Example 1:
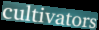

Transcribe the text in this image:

cultivators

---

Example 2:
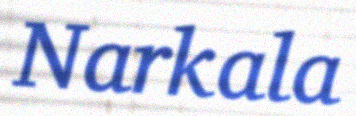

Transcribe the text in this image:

Narkala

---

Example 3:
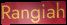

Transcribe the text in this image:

Rangiah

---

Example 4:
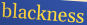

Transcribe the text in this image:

blackness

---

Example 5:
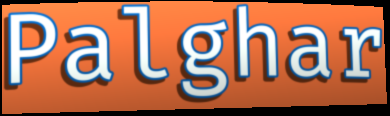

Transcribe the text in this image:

Palghar